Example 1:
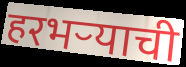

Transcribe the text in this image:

हरभऱ्याची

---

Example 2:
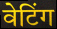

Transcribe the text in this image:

वेटिंग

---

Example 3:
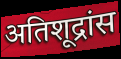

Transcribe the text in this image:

अतिशूद्रांस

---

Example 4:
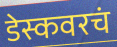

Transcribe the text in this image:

डेस्कवरचं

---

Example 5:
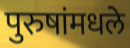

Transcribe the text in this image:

पुरुषांमधले